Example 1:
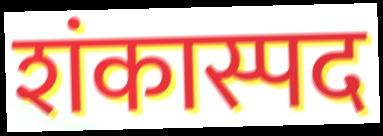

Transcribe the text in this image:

शंकास्पद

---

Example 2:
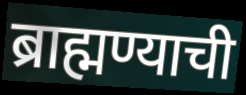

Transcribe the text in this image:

ब्राह्मण्याची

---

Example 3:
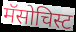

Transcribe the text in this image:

मॅसोचिस्ट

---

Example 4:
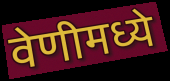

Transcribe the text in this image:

वेणीमध्ये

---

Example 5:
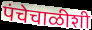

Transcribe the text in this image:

पंचेचाळीशी